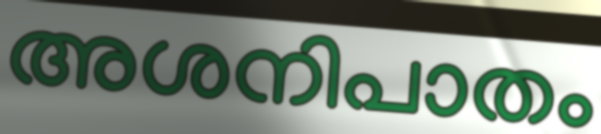
അശനിപാതം